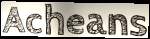
Acheans